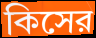
কিসের